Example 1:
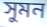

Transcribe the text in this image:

সুমন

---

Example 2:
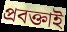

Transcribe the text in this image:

প্রবক্তাই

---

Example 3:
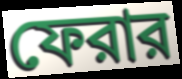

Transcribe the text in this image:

ফেরার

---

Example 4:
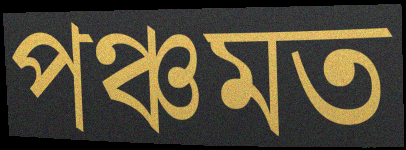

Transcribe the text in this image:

পঞ্চমত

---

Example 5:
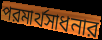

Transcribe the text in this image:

পরমার্থসাধনার